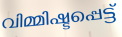
വിമ്മിഷ്ടപ്പെട്ട്